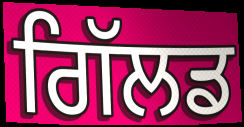
ਗਿੱਲਡ